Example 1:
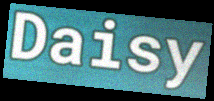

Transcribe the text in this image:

Daisy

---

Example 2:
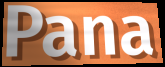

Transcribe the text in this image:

Pana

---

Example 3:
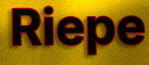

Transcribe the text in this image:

Riepe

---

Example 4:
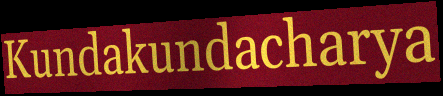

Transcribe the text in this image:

Kundakundacharya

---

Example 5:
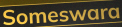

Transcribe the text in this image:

Someswara